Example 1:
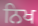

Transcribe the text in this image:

ਨਿਖ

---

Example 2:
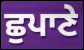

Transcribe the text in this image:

ਛੁਪਾਣੇ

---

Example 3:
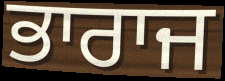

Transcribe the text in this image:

ਭਾਰਾਜ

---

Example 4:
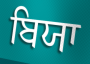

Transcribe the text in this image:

ਬਿਯਾ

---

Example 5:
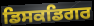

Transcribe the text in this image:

ਡਿਸਕਡਿਗਰ